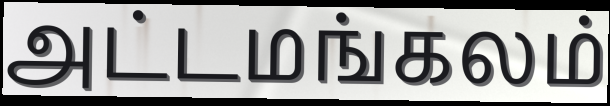
அட்டமங்கலம்